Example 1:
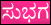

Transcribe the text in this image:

ಸುಭಗ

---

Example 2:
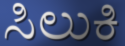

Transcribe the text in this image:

ಸಿಲುಕಿ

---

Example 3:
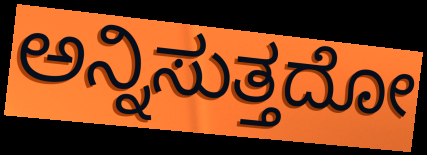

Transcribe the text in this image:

ಅನ್ನಿಸುತ್ತದೋ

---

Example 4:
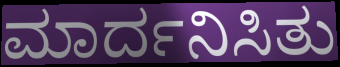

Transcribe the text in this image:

ಮಾರ್ದನಿಸಿತು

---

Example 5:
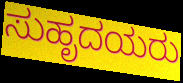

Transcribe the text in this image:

ಸುಹೃದಯರು